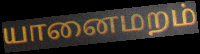
யானைமறம்